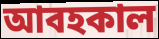
আবহকাল